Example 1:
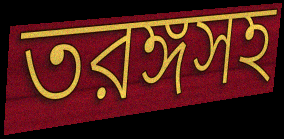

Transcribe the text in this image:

তরঙ্গসহ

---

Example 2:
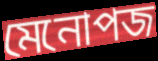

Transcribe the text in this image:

মেনোপজ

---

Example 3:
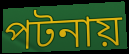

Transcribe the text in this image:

পটনায়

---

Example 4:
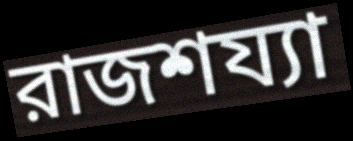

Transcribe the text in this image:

রাজশয্যা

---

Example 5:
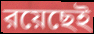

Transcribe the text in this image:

রয়েছেই